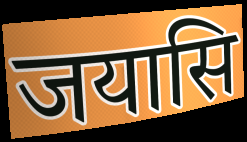
जयासि